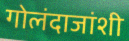
गोलंदाजांशी